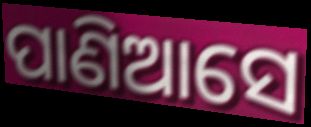
ପାଣିଆସେ